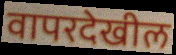
वापरदेखील